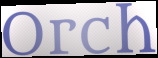
Orch